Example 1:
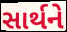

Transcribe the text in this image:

સાર્થને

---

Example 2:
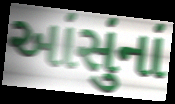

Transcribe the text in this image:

આંસુંનાં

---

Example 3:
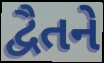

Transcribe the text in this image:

દ્વૈતને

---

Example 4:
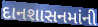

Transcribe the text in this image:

દાનશાસનમાંની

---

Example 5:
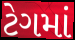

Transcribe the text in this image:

ટેગમાં